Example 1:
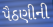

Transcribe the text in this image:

પૈઠણીની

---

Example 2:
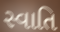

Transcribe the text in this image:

સ્વાતિ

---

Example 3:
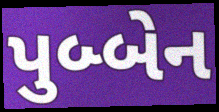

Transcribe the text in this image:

પુબ્બેન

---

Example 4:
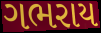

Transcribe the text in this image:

ગભરાય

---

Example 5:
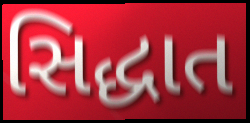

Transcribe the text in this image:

સિદ્ધાત